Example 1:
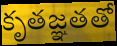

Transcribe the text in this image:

కృతజ్ఞతతో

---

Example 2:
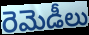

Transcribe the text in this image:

రెమెడీలు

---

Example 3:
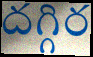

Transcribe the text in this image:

దగ్గిర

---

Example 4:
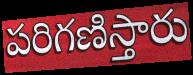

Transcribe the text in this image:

పరిగణిస్తారు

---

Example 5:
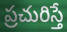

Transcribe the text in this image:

ప్రచురిస్తే